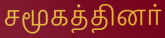
சமூகத்தினர்